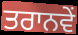
ਤਰਾਨਵੇਂ